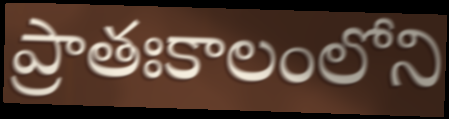
ప్రాతఃకాలంలోని